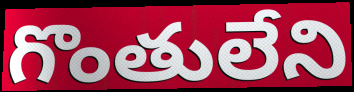
గొంతులేని